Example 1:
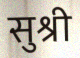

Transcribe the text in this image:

सुश्री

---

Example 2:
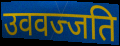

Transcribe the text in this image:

उववज्जति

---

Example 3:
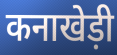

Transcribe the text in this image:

कनाखेड़ी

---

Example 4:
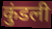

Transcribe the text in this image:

कुंडली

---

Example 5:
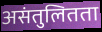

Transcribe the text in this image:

असंतुलितता